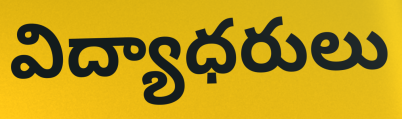
విద్యాధరులు